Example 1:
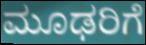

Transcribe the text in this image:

ಮೂಢರಿಗೆ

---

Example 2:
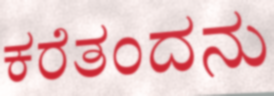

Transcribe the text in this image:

ಕರೆತಂದನು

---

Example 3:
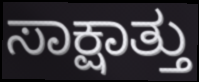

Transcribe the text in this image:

ಸಾಕ್ಷಾತ್ತು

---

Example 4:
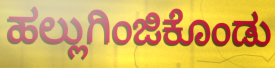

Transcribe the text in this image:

ಹಲ್ಲುಗಿಂಜಿಕೊಂಡು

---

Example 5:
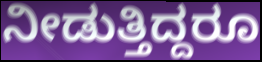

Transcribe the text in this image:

ನೀಡುತ್ತಿದ್ದರೂ